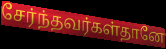
சேர்ந்தவர்கள்தானே